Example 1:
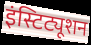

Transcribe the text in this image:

इंस्टिट्यूशन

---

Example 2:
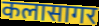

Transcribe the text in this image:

कलासागर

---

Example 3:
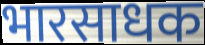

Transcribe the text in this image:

भारसाधक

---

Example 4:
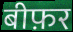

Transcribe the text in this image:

बीफ़र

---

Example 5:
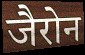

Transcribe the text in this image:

जैरोन